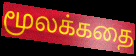
மூலக்கதை